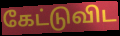
கேட்டுவிட